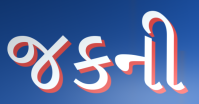
જકની